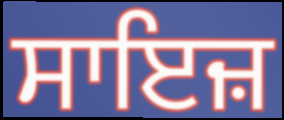
ਸਾਇਜ਼